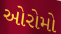
ઓરોમો